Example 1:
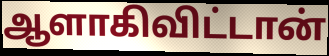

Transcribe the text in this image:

ஆளாகிவிட்டான்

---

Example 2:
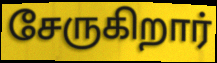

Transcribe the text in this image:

சேருகிறார்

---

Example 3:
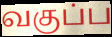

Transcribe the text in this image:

வகுப்ப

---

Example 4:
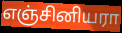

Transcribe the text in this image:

எஞ்சினியரா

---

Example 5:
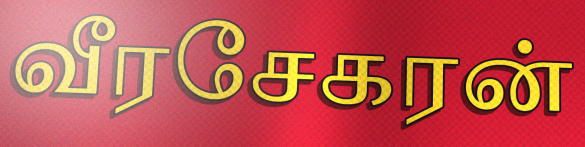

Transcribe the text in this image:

வீரசேகரன்